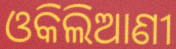
ଓକିଲିଆଣୀ